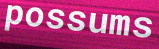
possums